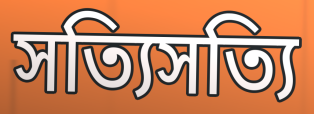
সত্যিসত্যি